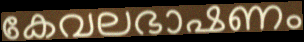
കേവലഭാഷണം